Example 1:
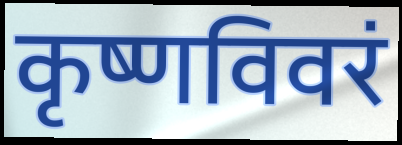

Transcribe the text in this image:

कृष्णविवरं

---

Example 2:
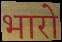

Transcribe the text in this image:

भारो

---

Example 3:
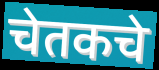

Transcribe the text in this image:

चेतकचे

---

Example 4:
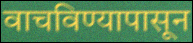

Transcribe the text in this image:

वाचविण्यापासून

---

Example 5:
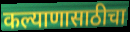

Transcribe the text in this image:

कल्याणासाठीचा